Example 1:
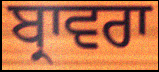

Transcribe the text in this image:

ਬ੍ਰਾਵਰਾ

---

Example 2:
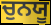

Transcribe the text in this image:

ਚੁਨਯੂ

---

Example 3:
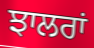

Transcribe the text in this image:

ਝਾਲਰਾਂ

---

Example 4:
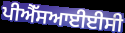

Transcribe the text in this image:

ਪੀਐੱਸਆਈਈਸੀ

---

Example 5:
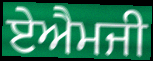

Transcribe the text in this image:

ਏਐਮਜੀ